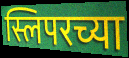
स्लिपरच्या